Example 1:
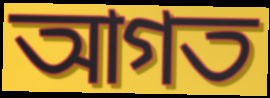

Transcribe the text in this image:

আগত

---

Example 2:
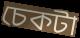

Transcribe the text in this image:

চেকটা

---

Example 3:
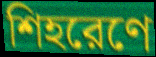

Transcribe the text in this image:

শিহরেণে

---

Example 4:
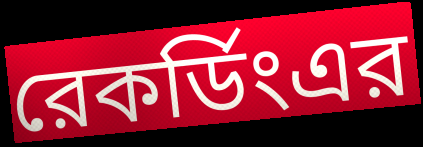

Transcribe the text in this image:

রেকর্ডিংএর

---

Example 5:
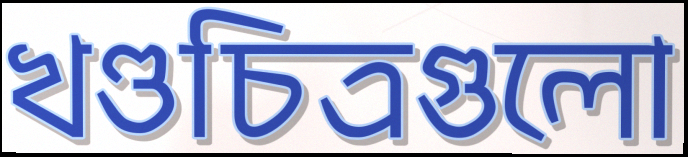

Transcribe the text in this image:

খণ্ডচিত্রগুলো